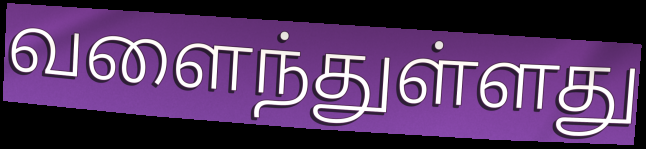
வளைந்துள்ளது